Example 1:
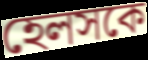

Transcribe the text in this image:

হেলসকে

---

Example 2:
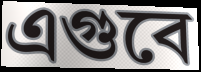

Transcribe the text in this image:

এগুবে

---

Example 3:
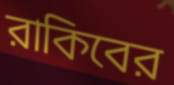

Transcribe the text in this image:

রাকিবের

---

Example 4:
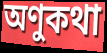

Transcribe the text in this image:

অণুকথা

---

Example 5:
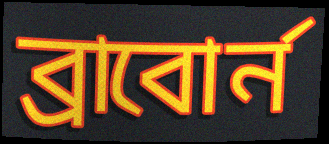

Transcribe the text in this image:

ব্রাবোর্ন